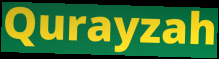
Qurayzah